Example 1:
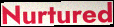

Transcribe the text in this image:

Nurtured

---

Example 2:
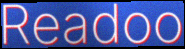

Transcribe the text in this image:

Readoo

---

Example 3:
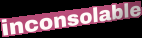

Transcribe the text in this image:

inconsolable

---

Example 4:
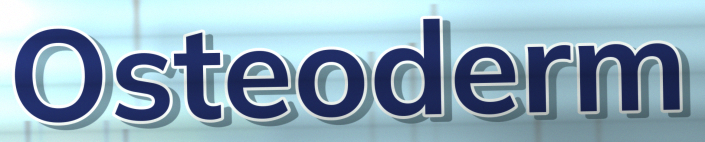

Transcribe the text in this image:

Osteoderm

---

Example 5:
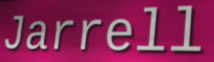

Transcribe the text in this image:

Jarrell